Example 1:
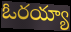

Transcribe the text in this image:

ఓరయ్యా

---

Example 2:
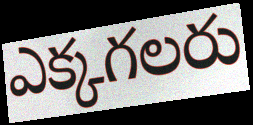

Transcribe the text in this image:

ఎక్కగలరు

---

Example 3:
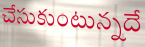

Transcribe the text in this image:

చేసుకుంటున్నదే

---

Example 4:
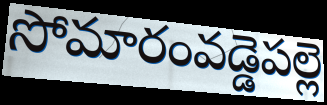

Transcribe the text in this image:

సోమారంవడ్డెపల్లె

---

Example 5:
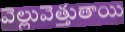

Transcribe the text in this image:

వెల్లువెత్తుతాయి